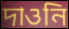
দাওনি